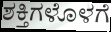
ಶಕ್ತಿಗಳೊಳಗೆ